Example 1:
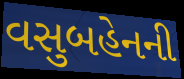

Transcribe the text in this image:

વસુબહેનની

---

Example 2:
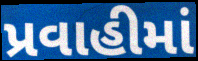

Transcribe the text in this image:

પ્રવાહીમાં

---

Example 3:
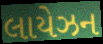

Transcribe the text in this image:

લાયેઝન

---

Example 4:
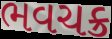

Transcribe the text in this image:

ભવચક્ર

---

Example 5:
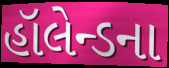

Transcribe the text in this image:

હૉલેન્ડના